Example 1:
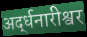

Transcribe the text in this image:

अर्द्धनारीश्वर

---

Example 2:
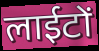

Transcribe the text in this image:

लाईटों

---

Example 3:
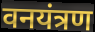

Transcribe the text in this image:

वनयंत्रण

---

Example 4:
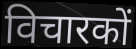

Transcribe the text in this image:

विचारकों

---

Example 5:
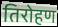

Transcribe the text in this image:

तिरोहण